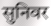
सुनिवर